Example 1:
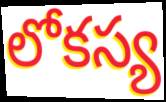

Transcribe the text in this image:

లోకస్య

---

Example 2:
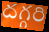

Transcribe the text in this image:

దగ్గరి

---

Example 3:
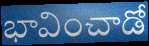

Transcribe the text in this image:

భావించాడో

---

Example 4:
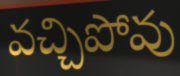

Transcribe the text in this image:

వచ్చిపోవు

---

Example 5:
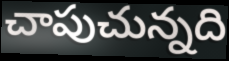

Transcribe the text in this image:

చాపుచున్నది